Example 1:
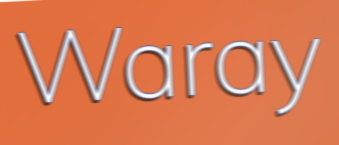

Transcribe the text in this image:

Waray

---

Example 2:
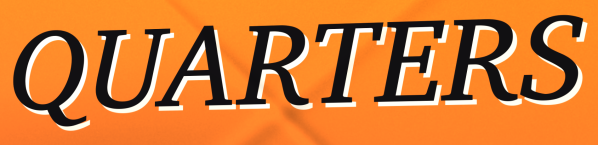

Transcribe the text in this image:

QUARTERS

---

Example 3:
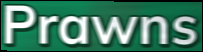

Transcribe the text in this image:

Prawns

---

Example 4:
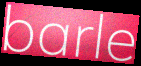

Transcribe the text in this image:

barle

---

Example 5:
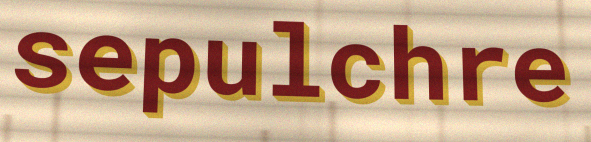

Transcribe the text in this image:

sepulchre